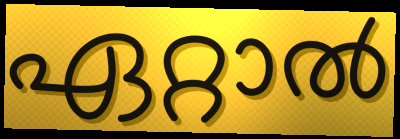
ഏറ്റാൽ